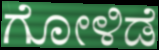
ಗೋಳಿಡೆ